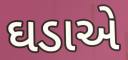
ઘડાએ